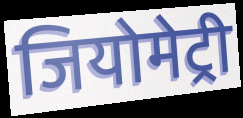
जियोमेट्री